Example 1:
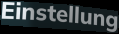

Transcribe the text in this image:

Einstellung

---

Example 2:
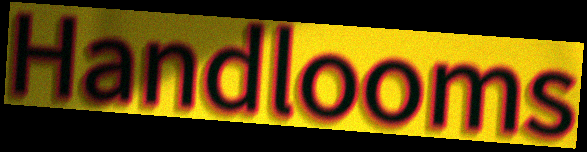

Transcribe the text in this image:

Handlooms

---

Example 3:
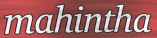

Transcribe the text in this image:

mahintha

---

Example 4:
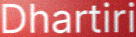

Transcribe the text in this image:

Dhartiri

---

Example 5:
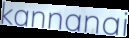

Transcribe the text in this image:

kannanai